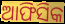
ଆଫିସିକ